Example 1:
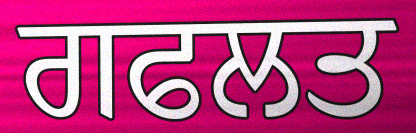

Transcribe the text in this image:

ਗਫਲਤ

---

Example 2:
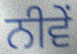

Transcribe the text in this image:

ਨੀਵੇਂ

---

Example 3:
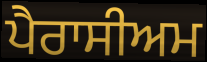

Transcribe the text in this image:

ਪੈਰਾਸੀਅਮ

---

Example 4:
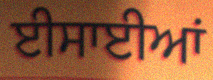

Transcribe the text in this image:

ਈਸਾਈਆਂ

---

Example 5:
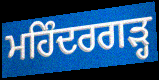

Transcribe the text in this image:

ਮਹਿੰਦਰਗੜ੍ਹ